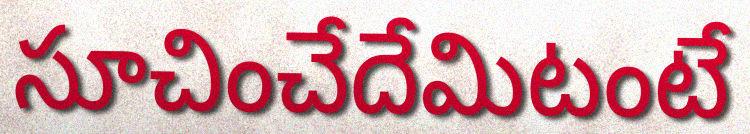
సూచించేదేమిటంటే